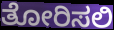
ತೋರಿಸಲಿ